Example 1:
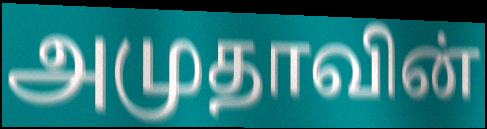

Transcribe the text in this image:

அமுதாவின்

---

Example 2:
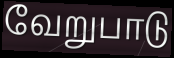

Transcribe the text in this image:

வேறுபாடு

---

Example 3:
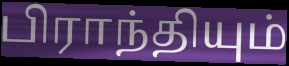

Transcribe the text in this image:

பிராந்தியும்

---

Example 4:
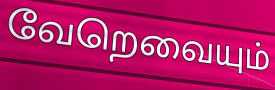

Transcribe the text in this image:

வேறெவையும்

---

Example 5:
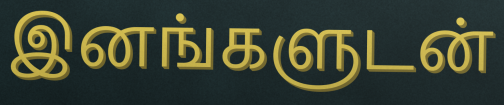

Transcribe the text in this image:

இனங்களுடன்